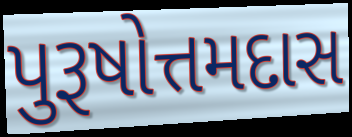
પુરૂષોત્તમદાસ